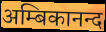
अम्बिकानन्द